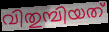
വിതുമ്പിയത്